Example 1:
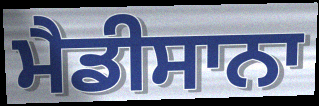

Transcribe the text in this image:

ਮੈਡੀਸਾਨਾ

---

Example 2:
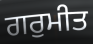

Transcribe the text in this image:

ਗਰੁਮੀਤ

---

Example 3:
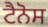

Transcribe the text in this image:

ਟੈਨੋਸ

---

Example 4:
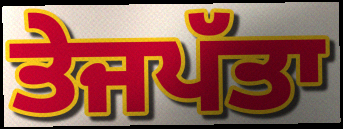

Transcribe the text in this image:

ਤੇਜਪੱਤਾ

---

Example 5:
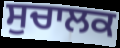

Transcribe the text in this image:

ਸੁਚਾਲਕ